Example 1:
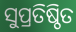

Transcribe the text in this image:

ସୁପ୍ରତିଷ୍ଠିତ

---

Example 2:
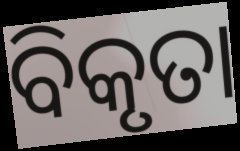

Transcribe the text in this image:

ବିକୃତା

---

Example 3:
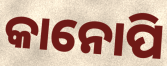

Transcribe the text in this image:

କାନୋପି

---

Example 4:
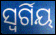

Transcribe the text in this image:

ସ୍ୱର୍ଗିୟ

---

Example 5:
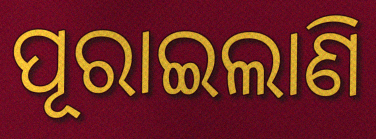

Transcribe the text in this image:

ପୂରାଇଲାଣି